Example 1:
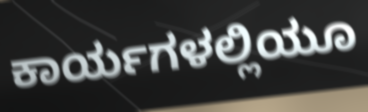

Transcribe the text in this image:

ಕಾರ್ಯಗಳಲ್ಲಿಯೂ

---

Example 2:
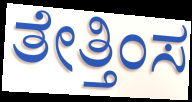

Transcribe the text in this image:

ತೇತ್ತಿಂಸ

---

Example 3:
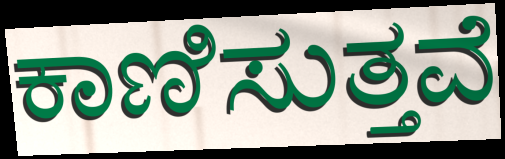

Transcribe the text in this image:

ಕಾಣಿಸುತ್ತವೆ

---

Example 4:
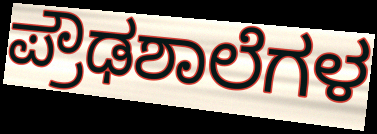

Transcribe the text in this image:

ಪ್ರೌಢಶಾಲೆಗಳ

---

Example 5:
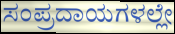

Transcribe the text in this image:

ಸಂಪ್ರದಾಯಗಳಲ್ಲೇ